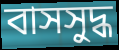
বাসসুদ্ধ